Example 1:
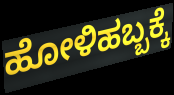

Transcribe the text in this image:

ಹೋಳಿಹಬ್ಬಕ್ಕೆ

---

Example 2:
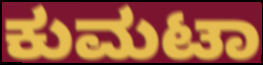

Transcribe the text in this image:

ಕುಮಟಾ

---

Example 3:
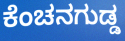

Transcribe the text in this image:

ಕೆಂಚನಗುಡ್ಡ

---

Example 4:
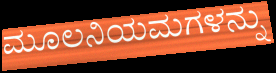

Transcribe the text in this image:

ಮೂಲನಿಯಮಗಳನ್ನು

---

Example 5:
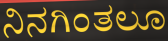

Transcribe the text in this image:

ನಿನಗಿಂತಲೂ